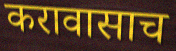
करावासाच